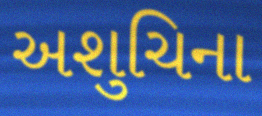
અશુચિના